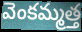
వెంకమ్మత్త